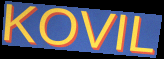
KOVIL